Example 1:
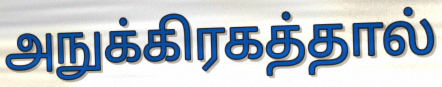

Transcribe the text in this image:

அநுக்கிரகத்தால்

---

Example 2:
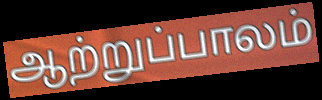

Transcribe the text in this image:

ஆற்றுப்பாலம்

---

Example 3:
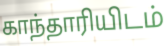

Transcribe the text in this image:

காந்தாரியிடம்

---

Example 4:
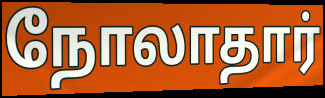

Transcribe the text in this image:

நோலாதார்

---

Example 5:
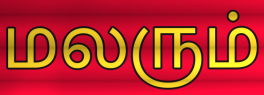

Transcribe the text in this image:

மலரும்